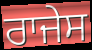
ਰਾਜੇਸ